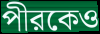
পীরকেও